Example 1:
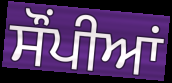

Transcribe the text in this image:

ਸੌਂਪੀਆਂ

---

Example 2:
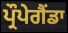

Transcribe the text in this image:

ਪ੍ਰੌਪੇਗੈਂਡਾ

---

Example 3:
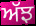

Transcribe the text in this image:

ਅੱਝ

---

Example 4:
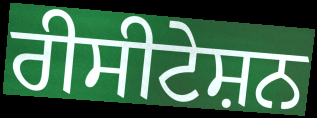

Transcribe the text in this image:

ਰੀਸੀਟੇਸ਼ਨ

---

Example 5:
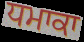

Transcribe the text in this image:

ਧਮਾਕਾ